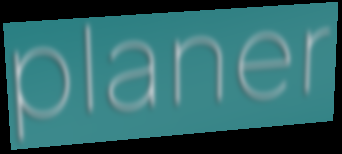
planer